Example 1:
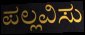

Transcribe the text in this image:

ಪಲ್ಲವಿಸು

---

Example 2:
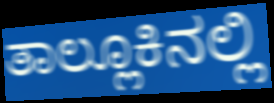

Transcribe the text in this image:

ತಾಲ್ಲೂಕಿನಲ್ಲಿ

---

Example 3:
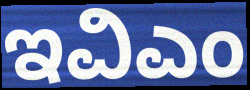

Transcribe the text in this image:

ಇವಿಎಂ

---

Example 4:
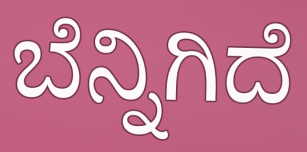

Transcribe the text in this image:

ಬೆನ್ನಿಗಿದೆ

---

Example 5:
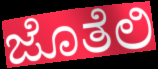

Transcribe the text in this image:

ಜೊತೆಲಿ